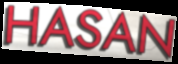
HASAN